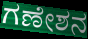
ಗಣೇಶನ